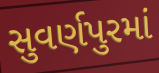
સુવર્ણપુરમાં